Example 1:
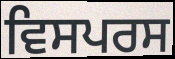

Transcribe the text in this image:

ਵਿਸਪਰਸ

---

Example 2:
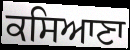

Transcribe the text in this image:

ਕਸਿਆਣਾ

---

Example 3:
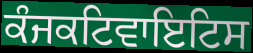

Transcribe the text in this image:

ਕੰਜਕਟਿਵਾਇਟਿਸ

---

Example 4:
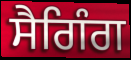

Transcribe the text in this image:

ਸੈਗਿੰਗ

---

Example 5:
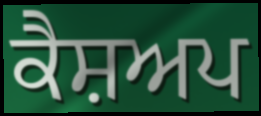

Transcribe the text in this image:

ਕੈਸ਼ਅਪ